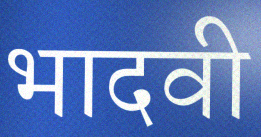
भादवी